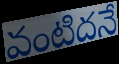
వంటిదనే